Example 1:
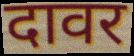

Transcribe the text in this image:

दावर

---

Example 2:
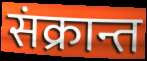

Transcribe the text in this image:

संक्रान्त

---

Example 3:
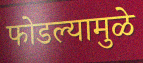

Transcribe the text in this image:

फोडल्यामुळे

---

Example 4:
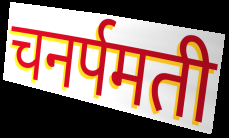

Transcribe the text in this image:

चनर्पमती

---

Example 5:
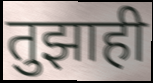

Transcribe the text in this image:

तुझाही